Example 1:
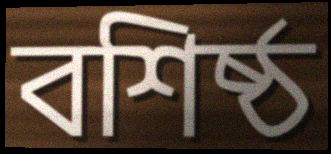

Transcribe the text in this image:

বশিষ্ঠ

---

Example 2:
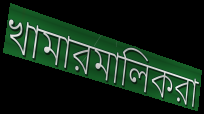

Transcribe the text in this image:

খামারমালিকরা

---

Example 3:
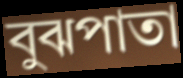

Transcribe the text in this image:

বুঝপাতা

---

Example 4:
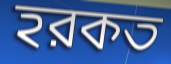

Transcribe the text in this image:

হরকত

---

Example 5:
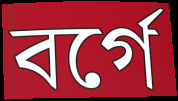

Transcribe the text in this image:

বর্গে